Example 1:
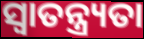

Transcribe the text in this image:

ସ୍ୱାତନ୍ତ୍ର୍ୟତା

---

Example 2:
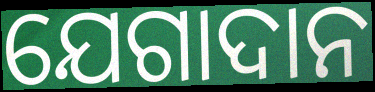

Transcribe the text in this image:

ଯେଗାଦାନ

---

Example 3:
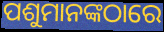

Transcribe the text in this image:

ପଶୁମାନଙ୍କଠାରେ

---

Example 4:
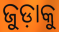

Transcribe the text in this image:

ଜୁଡ଼ାକୁ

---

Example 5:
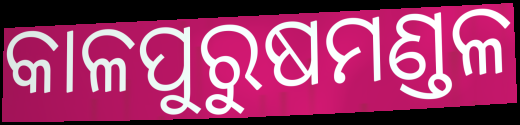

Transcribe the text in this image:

କାଳପୁରୁଷମଣ୍ଡଳ